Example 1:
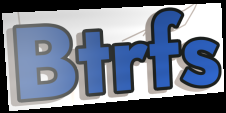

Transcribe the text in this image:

Btrfs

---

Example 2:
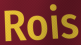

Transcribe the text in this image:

Rois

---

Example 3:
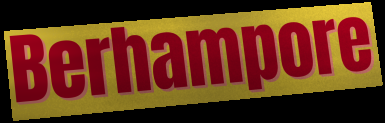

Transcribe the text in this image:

Berhampore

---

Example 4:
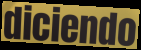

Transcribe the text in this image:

diciendo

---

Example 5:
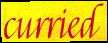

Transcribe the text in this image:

curried